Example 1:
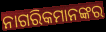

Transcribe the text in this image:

ନାଗରିକମାନଙ୍କର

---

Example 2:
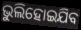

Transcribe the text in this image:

ଭୁଲିହୋଇଯିବ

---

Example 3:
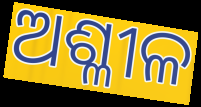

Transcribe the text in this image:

ଅଶ୍ଳୀଳ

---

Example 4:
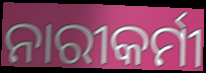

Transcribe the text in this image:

ନାରୀକର୍ମୀ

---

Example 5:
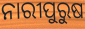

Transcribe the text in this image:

ନାରୀପୁରୁଷ